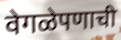
वेगळेपणाची